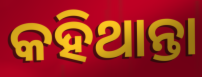
କହିଥାନ୍ତା